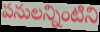
పనులన్నింటిని